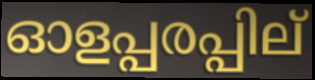
ഓളപ്പരപ്പില്